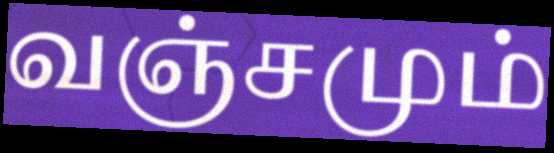
வஞ்சமும்